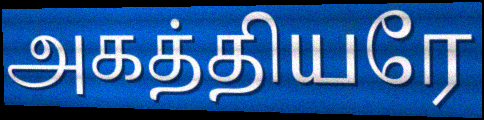
அகத்தியரே